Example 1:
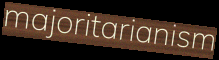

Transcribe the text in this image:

majoritarianism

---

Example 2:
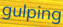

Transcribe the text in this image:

gulping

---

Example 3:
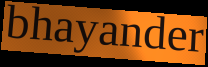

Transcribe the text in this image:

bhayander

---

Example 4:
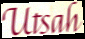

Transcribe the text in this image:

Utsah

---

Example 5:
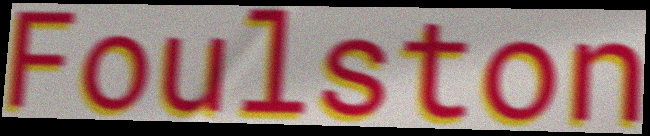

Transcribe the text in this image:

Foulston